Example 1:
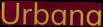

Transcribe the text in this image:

Urbana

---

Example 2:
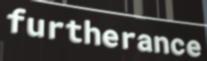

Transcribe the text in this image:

furtherance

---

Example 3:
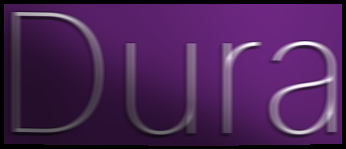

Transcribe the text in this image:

Dura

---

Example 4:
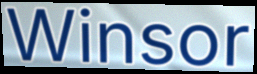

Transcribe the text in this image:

Winsor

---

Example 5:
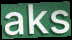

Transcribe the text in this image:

aks